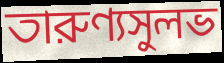
তারুণ্যসুলভ